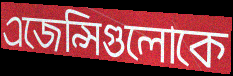
এজেন্সিগুলোকে